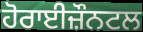
ਹੋਰਾਈਜ਼ੌਨਟਲ